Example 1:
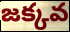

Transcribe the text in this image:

జక్కవ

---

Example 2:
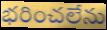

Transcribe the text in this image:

భరించలేను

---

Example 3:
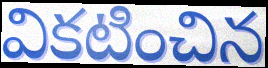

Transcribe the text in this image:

వికటించిన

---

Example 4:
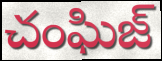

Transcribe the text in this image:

చంఘిజ్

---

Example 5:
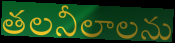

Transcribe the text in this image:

తలనీలాలను